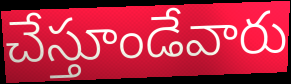
చేస్తూండేవారు